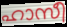
ഹാസീ